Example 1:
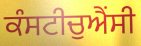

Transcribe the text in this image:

ਕੰਸਟੀਚੁਐਂਸੀ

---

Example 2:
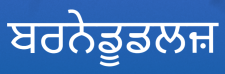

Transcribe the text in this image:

ਬਰਨੇਡੂਡਲਜ਼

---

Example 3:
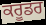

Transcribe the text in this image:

ਕਰੂਡਰ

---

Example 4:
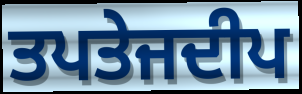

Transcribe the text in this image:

ਤਪਤੇਜਦੀਪ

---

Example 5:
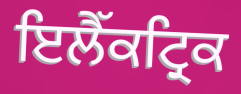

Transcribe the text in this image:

ਇਲੈੱਕਟ੍ਰਿਕ